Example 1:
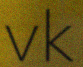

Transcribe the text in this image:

vk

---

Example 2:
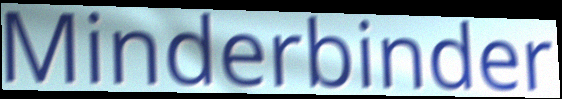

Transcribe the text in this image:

Minderbinder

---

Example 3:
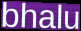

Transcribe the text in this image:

bhalu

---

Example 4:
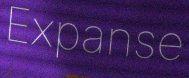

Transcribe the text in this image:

Expanse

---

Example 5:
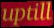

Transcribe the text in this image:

uptill